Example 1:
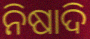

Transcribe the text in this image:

ନିଷାଦି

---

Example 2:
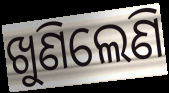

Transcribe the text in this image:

ଖୁଣିଲେଣି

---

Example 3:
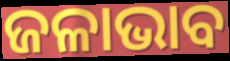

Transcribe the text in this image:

ଜଳାଭାବ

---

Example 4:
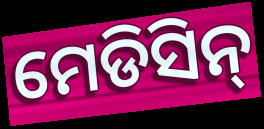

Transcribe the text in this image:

ମେଡିସିନ୍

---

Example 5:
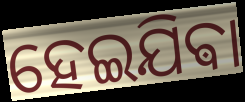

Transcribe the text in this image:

ହେଇଯିଵା